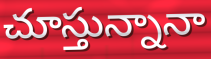
చూస్తున్నానా